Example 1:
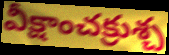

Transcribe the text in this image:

వీక్షాంచక్రుశ్చ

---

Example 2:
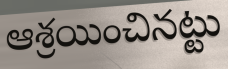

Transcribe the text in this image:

ఆశ్రయించినట్టు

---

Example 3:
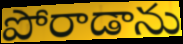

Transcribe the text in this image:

పోరాడాను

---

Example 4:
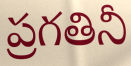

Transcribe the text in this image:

ప్రగతినీ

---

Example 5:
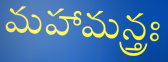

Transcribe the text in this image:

మహామన్త్రః